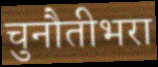
चुनौतीभरा